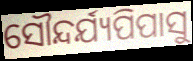
ସୌନ୍ଦର୍ଯ୍ୟପିପାସୁ